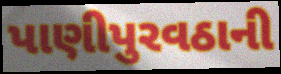
પાણીપુરવઠાની